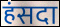
हंसदा